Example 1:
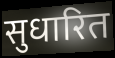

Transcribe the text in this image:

सुधारित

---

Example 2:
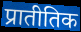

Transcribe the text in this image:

प्रातीतिक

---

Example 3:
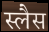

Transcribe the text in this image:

स्लैस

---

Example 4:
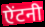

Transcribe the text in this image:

ऐंटनी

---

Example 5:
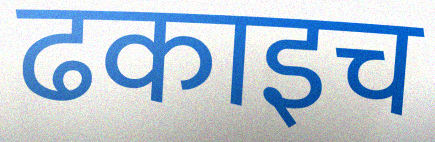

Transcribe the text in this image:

ढकाइच